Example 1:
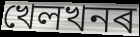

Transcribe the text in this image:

খেলখনৰ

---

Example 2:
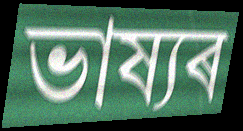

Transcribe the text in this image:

ভাষ্যৰ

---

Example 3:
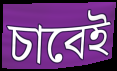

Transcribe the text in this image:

চাবেই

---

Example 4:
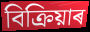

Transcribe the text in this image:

বিক্ৰিয়াৰ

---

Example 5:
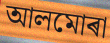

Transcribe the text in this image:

আলমোৰা